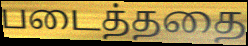
படைத்ததை